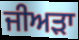
ਜੀਅੜਾ